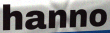
hanno